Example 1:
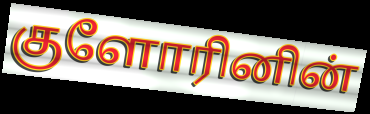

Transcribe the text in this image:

குளோரினின்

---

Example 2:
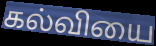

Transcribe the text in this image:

கல்வியை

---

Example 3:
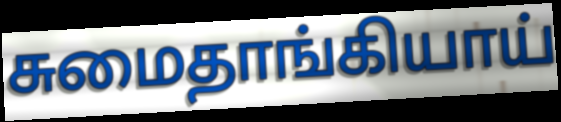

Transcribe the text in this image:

சுமைதாங்கியாய்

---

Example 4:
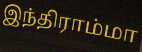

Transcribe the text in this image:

இந்திராம்மா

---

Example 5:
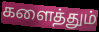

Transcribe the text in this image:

களைத்தும்